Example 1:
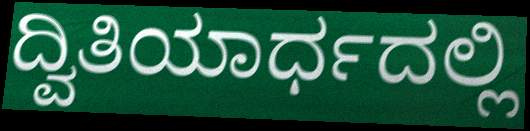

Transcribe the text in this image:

ದ್ವಿತಿಯಾರ್ಧದಲ್ಲಿ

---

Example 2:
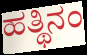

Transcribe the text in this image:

ಹತ್ಥಿನಂ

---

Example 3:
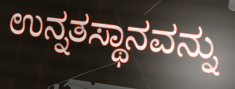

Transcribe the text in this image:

ಉನ್ನತಸ್ಥಾನವನ್ನು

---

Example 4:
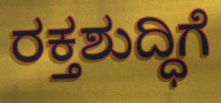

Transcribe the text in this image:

ರಕ್ತಶುದ್ಧಿಗೆ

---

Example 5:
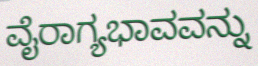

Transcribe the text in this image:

ವೈರಾಗ್ಯಭಾವವನ್ನು